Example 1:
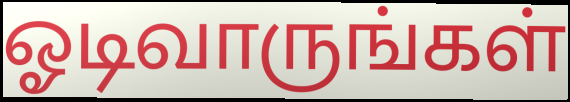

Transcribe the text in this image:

ஓடிவாருங்கள்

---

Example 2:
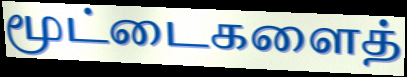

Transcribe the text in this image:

மூட்டைகளைத்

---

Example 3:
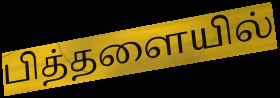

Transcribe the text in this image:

பித்தளையில்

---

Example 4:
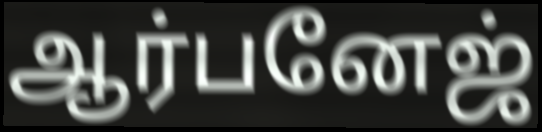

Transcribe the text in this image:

ஆர்பனேஜ்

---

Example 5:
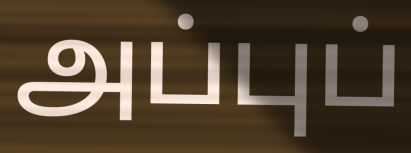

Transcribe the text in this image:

அப்புப்